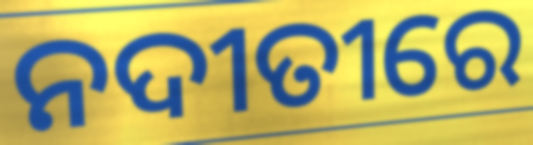
ନଦୀତୀରେ